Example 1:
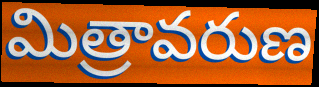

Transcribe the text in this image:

మిత్రావరుణ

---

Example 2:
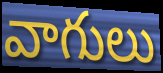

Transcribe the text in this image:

వాగులు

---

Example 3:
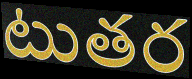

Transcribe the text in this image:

టుతర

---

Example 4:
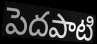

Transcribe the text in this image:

పెదపాటి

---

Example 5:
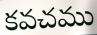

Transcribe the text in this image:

కవచము